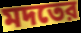
মদতের